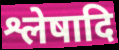
श्लेषादि